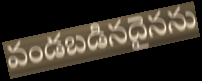
వండబడినదైనను